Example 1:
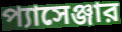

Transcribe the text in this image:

প্যাসেঞ্জার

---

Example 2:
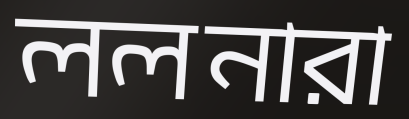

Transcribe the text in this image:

ললনারা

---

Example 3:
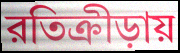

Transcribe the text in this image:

রতিক্রীড়ায়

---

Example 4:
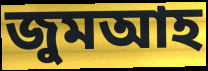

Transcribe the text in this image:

জুমআহ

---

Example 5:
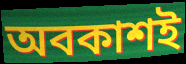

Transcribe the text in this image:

অবকাশই